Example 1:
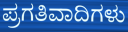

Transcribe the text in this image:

ಪ್ರಗತಿವಾದಿಗಳು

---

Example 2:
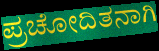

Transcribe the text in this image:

ಪ್ರಚೋದಿತನಾಗಿ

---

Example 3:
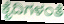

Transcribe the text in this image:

ಕೈದಿಗಳಂತೆ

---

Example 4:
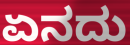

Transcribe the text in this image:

ಏನದು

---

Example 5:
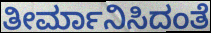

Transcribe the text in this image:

ತೀರ್ಮಾನಿಸಿದಂತೆ